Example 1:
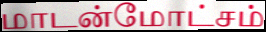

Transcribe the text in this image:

மாடன்மோட்சம்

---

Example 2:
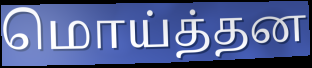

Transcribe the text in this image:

மொய்த்தன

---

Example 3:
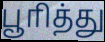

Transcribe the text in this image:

பூரித்து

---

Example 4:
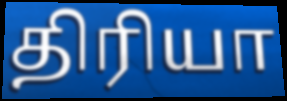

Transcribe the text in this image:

திரியா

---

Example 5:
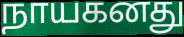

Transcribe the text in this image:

நாயகனது